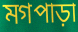
মগপাড়া